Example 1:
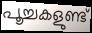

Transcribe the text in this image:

പൂച്ചകളുണ്ട്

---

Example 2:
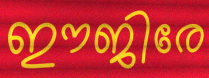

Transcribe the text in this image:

ഈജിരേ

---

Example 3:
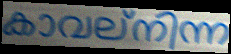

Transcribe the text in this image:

കാവല്നിന്ന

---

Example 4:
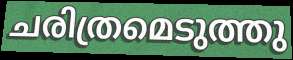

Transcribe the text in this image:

ചരിത്രമെടുത്തു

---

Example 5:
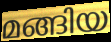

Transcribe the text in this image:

മങ്ങിയ